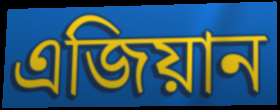
এজিয়ান